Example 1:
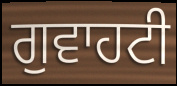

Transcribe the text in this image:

ਗੁਵਾਹਟੀ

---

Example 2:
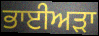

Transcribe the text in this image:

ਭਾਈਅੜਾ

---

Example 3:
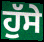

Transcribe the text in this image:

ਹੁੱਸੇ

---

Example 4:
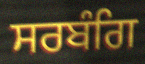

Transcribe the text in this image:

ਸਰਬੰਗਿ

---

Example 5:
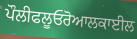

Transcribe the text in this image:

ਪੌਲੀਫਲੂਓਰੋਆਲਕਾਈਲ